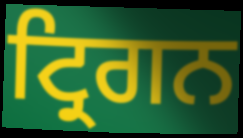
ਟ੍ਰਿਗਨ